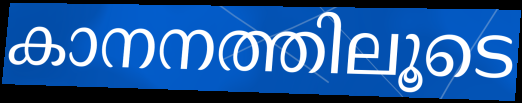
കാനനത്തിലൂടെ